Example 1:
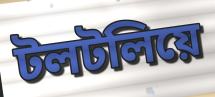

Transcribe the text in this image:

টলটলিয়ে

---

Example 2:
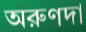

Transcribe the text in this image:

অরুণদা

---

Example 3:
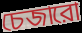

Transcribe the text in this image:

চেজারো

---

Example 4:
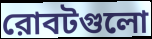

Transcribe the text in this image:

রোবটগুলো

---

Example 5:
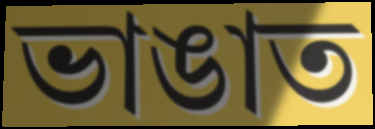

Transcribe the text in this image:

ভাঙাত